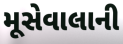
મૂસેવાલાની